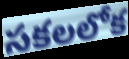
సకలలోక